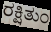
ರಕ್ಷಿತುಂ